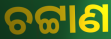
ଚଟ୍ଟାଣ